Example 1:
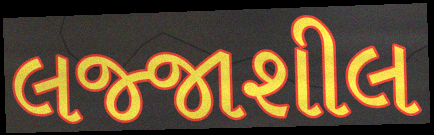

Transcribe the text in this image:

લજ્જાશીલ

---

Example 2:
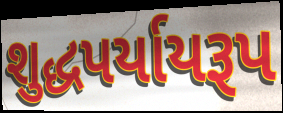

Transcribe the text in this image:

શુદ્ધપર્યાયરૂપ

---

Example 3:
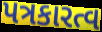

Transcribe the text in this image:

પત્રકારત્વ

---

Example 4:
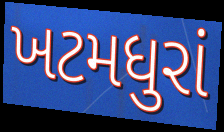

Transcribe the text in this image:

ખટમધુરાં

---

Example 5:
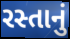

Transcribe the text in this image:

રસ્તાનું